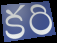
కరి